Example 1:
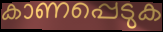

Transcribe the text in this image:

കാണപ്പെടുക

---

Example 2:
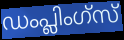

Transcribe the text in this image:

ഡംപ്ലിംഗ്സ്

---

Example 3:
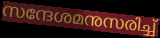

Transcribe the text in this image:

സന്ദേശമനുസരിച്ച്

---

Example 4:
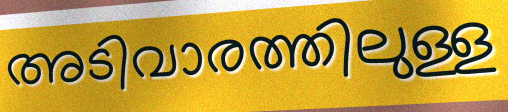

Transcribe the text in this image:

അടിവാരത്തിലുള്ള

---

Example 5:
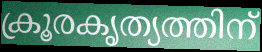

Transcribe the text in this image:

ക്രൂരകൃത്യത്തിന്